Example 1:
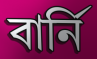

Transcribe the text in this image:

বার্নি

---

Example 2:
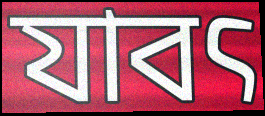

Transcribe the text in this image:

যাবৎ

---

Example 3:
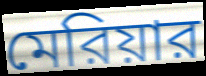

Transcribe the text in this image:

মেরিয়ার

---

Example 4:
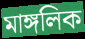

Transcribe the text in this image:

মাঙ্গলিক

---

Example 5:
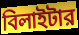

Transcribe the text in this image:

বিলাইটার